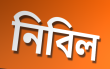
নিবিল